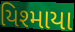
યિશ્માયા